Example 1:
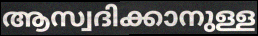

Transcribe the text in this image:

ആസ്വദിക്കാനുള്ള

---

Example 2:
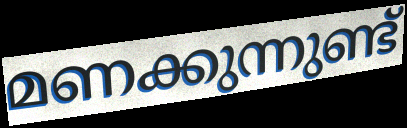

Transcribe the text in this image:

മണക്കുന്നുണ്ട്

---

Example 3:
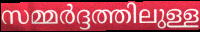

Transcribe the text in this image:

സമ്മർദ്ദത്തിലുള്ള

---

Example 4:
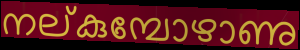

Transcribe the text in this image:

നല്കുമ്പോഴാണു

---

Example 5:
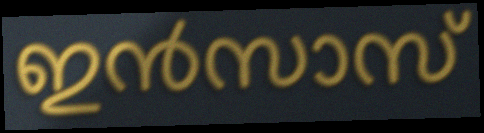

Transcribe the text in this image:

ഇൻസാസ്